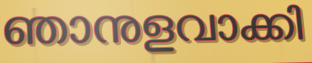
ഞാനുളവാക്കി